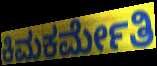
ಕಿಮಕರ್ಮೇತಿ